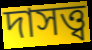
দাসত্ত্ব